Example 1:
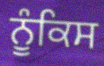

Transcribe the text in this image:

ਨੂੰਕਿਸ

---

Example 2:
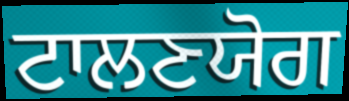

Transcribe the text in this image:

ਟਾਲਣਯੋਗ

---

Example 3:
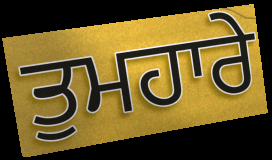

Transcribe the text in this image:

ਤੁਮਹਾਰੇ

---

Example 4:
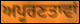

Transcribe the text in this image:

ਅਪੂਰਣਤਾਵਾਂ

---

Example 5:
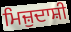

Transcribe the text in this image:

ਮਿਜ਼ੁਦਾਸ਼ੀ